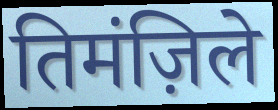
तिमंज़िले